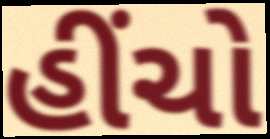
હીંચો